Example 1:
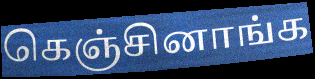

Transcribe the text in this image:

கெஞ்சினாங்க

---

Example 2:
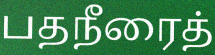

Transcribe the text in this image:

பதநீரைத்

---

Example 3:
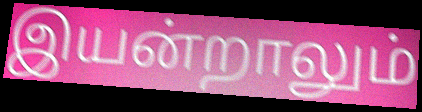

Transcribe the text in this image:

இயன்றாலும்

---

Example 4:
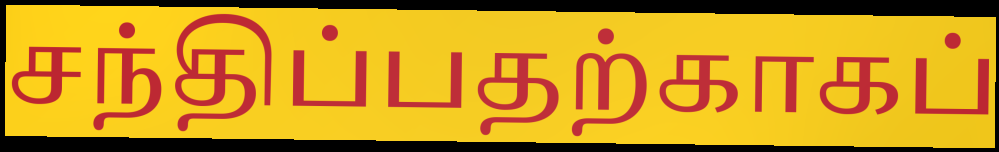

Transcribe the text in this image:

சந்திப்பதற்காகப்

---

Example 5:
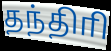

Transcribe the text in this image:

தந்திரி